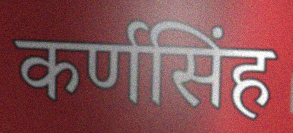
कर्णसिंह